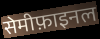
सेमीफ़ाइनल